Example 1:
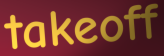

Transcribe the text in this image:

takeoff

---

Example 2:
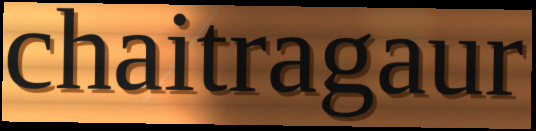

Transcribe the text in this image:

chaitragaur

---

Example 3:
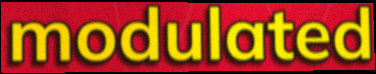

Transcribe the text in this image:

modulated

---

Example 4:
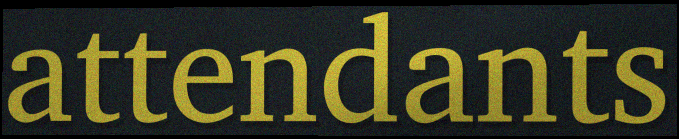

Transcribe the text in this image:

attendants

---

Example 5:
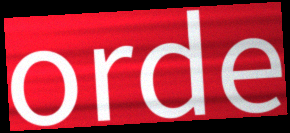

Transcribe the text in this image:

orde